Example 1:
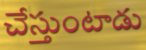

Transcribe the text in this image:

చేస్తుంటాడు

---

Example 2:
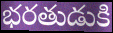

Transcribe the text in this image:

భరతుడుకి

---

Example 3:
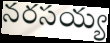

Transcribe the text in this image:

నరసయ్య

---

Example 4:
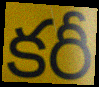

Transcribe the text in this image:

కరీ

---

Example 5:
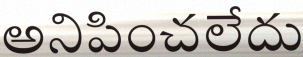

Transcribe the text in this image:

అనిపించలేదు